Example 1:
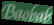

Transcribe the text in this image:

Baobab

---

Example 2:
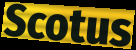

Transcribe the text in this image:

Scotus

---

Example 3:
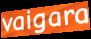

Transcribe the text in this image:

vaigara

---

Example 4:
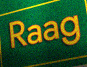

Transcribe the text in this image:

Raag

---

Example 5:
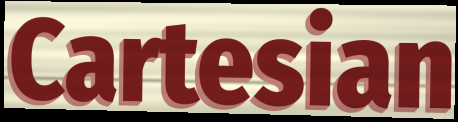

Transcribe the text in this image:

Cartesian